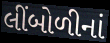
લીંબોળીનાં